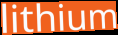
lithium